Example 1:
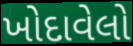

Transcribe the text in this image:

ખોદાવેલો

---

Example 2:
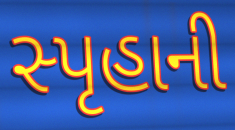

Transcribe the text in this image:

સ્પૃહાની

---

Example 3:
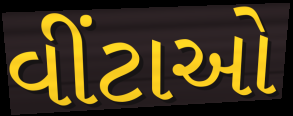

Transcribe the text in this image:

વીંટાઓ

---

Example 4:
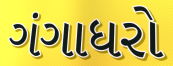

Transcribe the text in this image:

ગંગાધરો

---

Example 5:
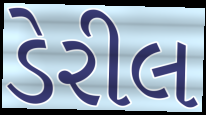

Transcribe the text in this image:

ડેરીલ